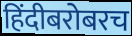
हिंदीबरोबरच